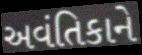
અવંતિકાને